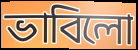
ভাবিলো